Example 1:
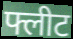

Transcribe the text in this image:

फ्लीट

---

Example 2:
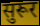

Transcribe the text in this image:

सुरूर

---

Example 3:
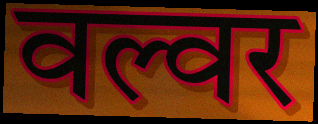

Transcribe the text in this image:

वल्वर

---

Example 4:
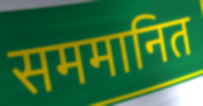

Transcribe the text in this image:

सममानित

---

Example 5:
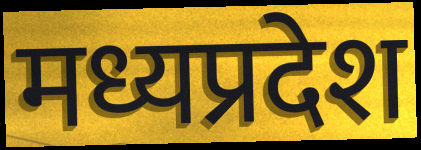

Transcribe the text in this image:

मध्यप्रदेश